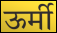
ऊर्मी